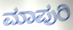
ಮಾಪುರಿ